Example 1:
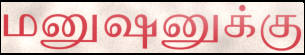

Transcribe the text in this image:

மனுஷனுக்கு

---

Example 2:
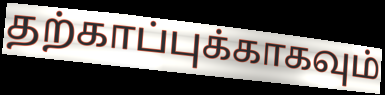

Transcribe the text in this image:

தற்காப்புக்காகவும்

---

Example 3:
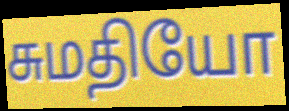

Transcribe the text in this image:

சுமதியோ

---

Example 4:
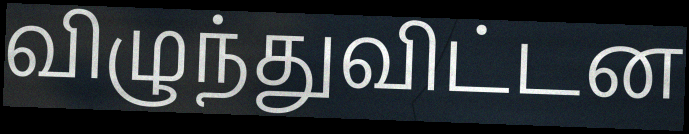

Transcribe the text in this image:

விழுந்துவிட்டன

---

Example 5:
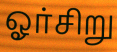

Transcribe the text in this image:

ஓர்சிறு